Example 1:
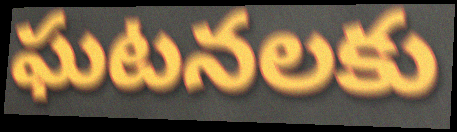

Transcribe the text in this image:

ఘటనలకు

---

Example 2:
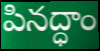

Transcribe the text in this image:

పినద్ధాం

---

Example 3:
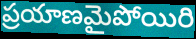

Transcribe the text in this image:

ప్రయాణమైపోయిరి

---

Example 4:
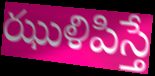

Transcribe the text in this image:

ఝుళిపిస్తే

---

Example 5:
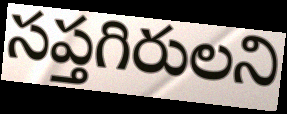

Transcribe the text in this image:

సప్తగిరులని